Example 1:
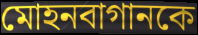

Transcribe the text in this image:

মোহনবাগানকে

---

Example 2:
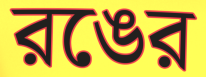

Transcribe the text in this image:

রঙের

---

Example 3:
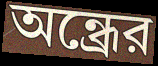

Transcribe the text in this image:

অন্ধ্রের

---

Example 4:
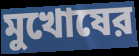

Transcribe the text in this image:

মুখোষের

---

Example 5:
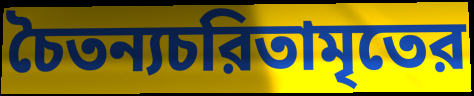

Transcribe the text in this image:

চৈতন্যচরিতামৃতের